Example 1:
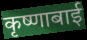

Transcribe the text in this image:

कृष्णाबाई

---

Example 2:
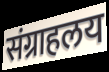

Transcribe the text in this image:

संग्राहलय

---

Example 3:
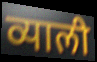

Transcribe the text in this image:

व्याली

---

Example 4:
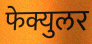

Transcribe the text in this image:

फेक्युलर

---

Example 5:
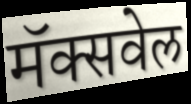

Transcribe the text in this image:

मॅक्सवेल